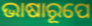
ଭାଷାରୂପେ